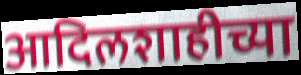
आदिलशाहीच्या